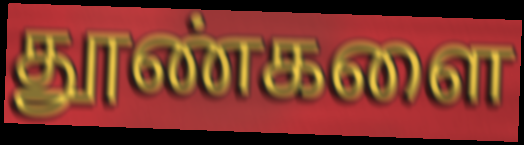
தூண்களை